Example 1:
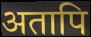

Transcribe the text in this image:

अतापि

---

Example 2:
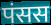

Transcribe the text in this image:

पंसस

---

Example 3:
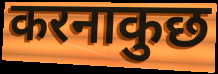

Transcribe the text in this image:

करनाकुछ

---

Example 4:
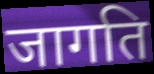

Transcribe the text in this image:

जागति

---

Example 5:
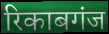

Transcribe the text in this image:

रिकाबगंज